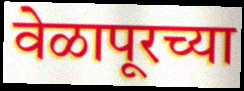
वेळापूरच्या